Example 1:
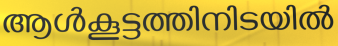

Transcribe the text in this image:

ആൾകൂട്ടത്തിനിടയിൽ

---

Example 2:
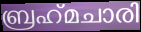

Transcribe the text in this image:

ബ്രഹ്‌മചാരി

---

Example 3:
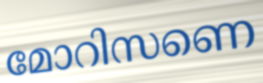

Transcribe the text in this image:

മോറിസണെ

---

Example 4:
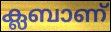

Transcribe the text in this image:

ക്ലബാണ്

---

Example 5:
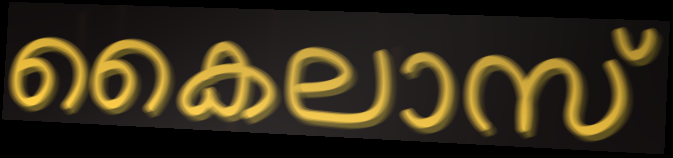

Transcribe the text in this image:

കൈലാസ്